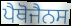
ਪੈਥੋਜੈਨਸ